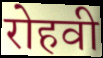
रोहवी